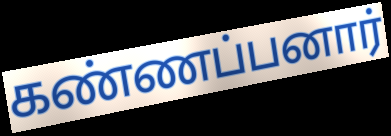
கண்ணப்பனார்